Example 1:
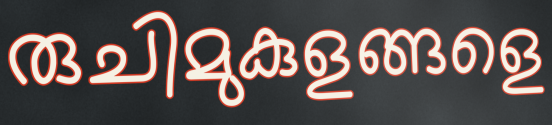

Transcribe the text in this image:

രുചിമുകുളങ്ങളെ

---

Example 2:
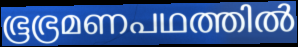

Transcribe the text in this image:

ഭൂഭ്രമണപഥത്തിൽ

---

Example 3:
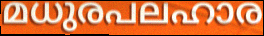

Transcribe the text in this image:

മധുരപലഹാര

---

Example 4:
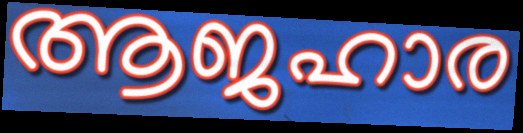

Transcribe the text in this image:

ആജഹാര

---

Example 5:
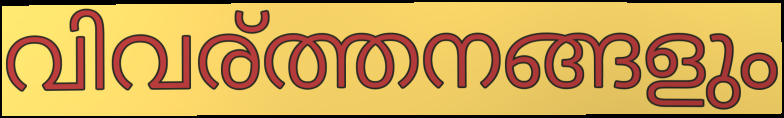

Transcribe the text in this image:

വിവര്ത്തനങ്ങളും